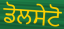
ਡੋਲਸੇਟੋ